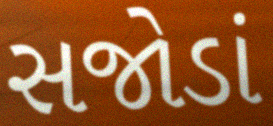
સજોડાં